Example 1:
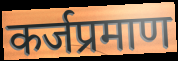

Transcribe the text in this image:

कर्जप्रमाण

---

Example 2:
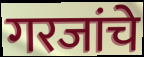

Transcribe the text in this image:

गरजांचे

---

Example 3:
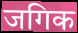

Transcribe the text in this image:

जगिक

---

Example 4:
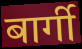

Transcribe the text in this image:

बार्गी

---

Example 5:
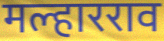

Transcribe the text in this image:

मल्हारराव